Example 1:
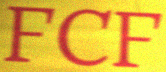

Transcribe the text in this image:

FCF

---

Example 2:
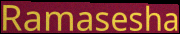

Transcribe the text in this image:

Ramasesha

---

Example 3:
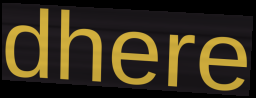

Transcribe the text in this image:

dhere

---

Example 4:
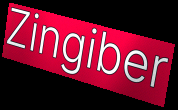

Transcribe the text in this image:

Zingiber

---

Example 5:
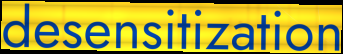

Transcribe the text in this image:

desensitization